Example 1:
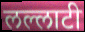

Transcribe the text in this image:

लल्लाटी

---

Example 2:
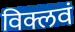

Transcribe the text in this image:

विक्लवं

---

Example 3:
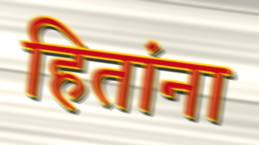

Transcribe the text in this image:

हितांना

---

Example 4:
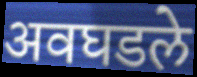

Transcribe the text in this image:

अवघडले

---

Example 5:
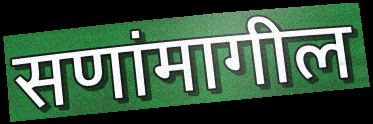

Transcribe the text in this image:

सणांमागील